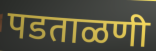
पडताळणी